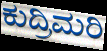
ಕುದ್ರಿಮರಿ